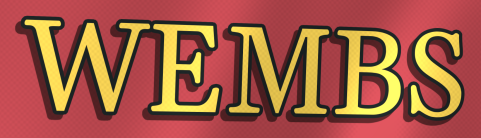
WEMBS